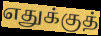
எதுக்குத்